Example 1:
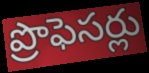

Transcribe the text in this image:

ప్రొఫెసర్లు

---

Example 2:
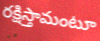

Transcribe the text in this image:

రక్షిస్తామంటూ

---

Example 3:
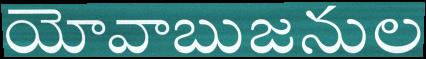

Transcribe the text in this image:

యోవాబుజనుల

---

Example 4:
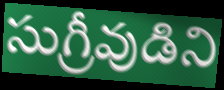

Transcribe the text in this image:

సుగ్రీవుడిని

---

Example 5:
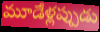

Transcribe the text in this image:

మూడేళ్లప్పుడు